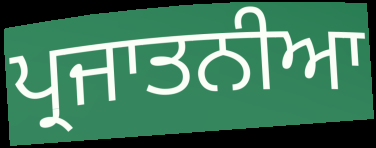
ਪ੍ਰਜਾਤਨੀਆ